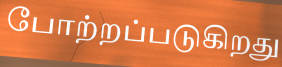
போற்றப்படுகிறது